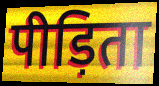
पीड़िता